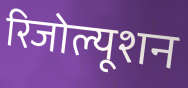
रिजोल्यूशन